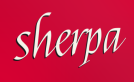
sherpa